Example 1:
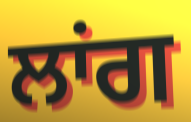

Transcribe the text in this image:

ਲਾਂਗ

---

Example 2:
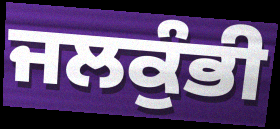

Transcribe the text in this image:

ਜਲਕੁੰਭੀ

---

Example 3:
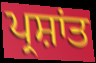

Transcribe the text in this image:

ਪ੍ਰਸ਼ਾਂਤ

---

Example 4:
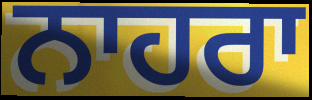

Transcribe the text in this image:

ਨਾਹਰਾ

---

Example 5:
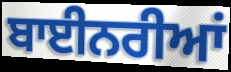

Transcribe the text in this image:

ਬਾਈਨਰੀਆਂ